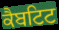
ਕੈਬਟਿਟ